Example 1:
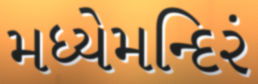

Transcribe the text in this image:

મધ્યેમન્દિરં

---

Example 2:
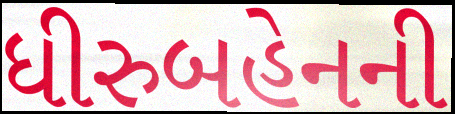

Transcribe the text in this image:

ધીરુબહેનની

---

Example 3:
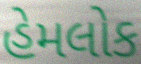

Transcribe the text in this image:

હેમલોક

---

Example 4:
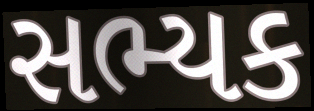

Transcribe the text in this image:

સભ્યક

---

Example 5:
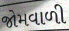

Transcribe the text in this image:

જોમવાળી